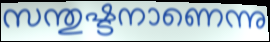
സന്തുഷ്ടനാണെന്നു